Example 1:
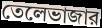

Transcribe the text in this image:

তেলেভাজার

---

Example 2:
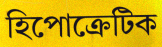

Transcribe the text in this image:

হিপোক্রেটিক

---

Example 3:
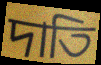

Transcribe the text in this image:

দাতি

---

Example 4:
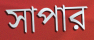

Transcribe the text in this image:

সাপার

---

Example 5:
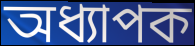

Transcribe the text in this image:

অধ্যাপক